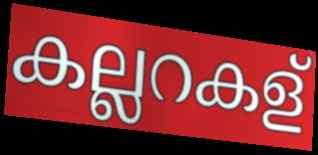
കല്ലറകള്